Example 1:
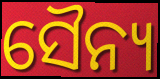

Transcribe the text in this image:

ସୈନ୍ୟ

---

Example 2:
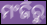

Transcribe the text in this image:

ମଂଜିରୁ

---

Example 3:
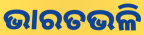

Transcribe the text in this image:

ଭାରତଭଳି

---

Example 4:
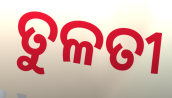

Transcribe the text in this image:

ତୁଳତୀ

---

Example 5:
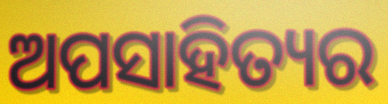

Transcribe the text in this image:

ଅପସାହିତ୍ୟର